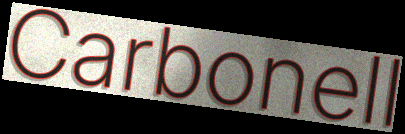
Carbonell